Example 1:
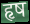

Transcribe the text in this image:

हृष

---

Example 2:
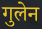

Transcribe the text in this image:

गुलेन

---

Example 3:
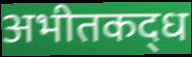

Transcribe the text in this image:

अभीतकद्ध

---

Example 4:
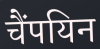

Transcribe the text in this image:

चैंपयिन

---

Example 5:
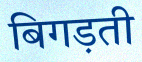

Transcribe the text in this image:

बिगड़ती